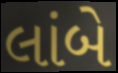
લાંબે